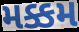
મક્કમ